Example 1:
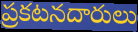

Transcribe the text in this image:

ప్రకటనదారులు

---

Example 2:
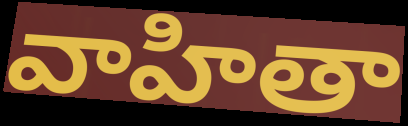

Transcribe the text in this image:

వాహితా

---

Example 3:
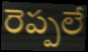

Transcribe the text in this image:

రెప్పలే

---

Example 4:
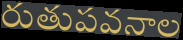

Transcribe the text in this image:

రుతుపవనాల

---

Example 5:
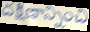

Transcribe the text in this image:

దక్షిణాన్నించి